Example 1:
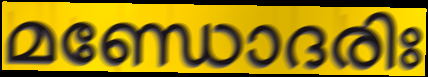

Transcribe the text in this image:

മണ്ഡോദരിഃ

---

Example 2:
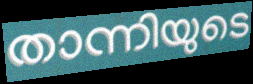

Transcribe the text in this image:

താന്നിയുടെ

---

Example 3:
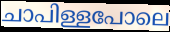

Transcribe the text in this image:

ചാപിള്ളപോലെ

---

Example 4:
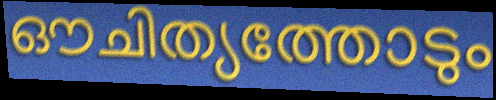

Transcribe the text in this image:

ഔചിത്യത്തോടും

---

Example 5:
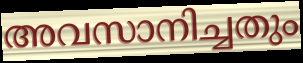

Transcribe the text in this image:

അവസാനിച്ചതും